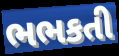
ભભકતી